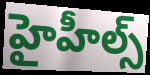
హైహీల్స్